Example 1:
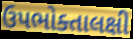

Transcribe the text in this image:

ઉપભોક્તાલક્ષી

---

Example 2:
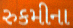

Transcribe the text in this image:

રુકમીના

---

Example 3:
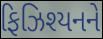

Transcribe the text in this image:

ફિઝિશ્યનને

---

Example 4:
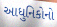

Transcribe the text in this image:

આધુનિકોનો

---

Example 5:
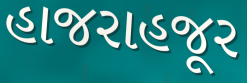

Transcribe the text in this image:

હાજરાહજૂર